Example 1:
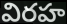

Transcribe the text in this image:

విరహ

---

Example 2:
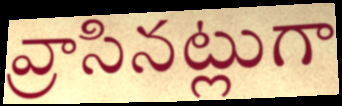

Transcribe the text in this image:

వ్రాసినట్లుగా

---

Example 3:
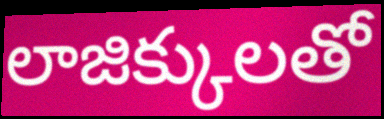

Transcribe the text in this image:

లాజిక్కులతో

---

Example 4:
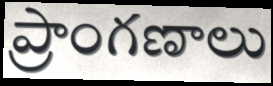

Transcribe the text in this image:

ప్రాంగణాలు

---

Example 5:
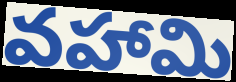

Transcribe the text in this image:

వహామి